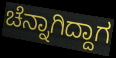
ಚೆನ್ನಾಗಿದ್ದಾಗ